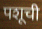
पशूची